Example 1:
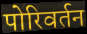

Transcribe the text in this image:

पोरिवर्तन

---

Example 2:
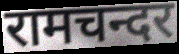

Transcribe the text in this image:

रामचन्दर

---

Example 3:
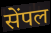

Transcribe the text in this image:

सेंपल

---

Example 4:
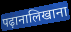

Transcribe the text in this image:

पढ़ानालिखाना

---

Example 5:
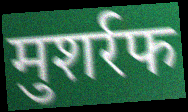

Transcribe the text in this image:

मुशर्रफ